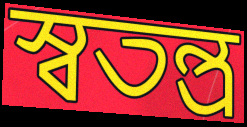
স্বতন্ত্ৰ